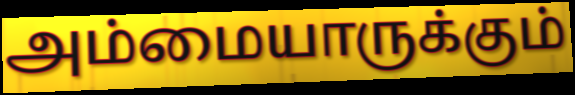
அம்மையாருக்கும்